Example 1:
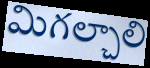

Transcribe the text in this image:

మిగల్చాలి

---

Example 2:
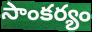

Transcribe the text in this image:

సాంకర్యం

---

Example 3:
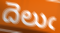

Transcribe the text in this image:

దెలుఁ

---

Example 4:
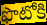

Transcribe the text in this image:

ఫొటోకి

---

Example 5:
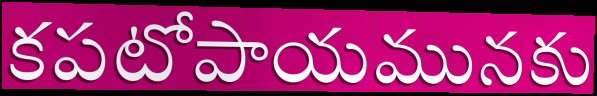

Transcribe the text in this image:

కపటోపాయమునకు